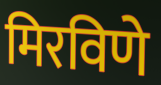
मिरविणे